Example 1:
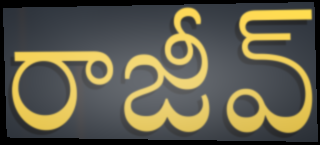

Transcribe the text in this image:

రాజీవ్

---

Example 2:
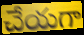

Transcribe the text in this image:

చేయగా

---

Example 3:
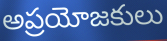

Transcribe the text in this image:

అప్రయోజకులు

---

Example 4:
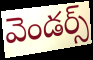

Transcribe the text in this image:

వెండర్స్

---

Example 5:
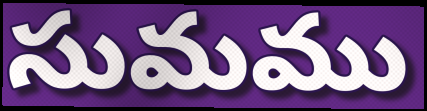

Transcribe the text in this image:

సుమము